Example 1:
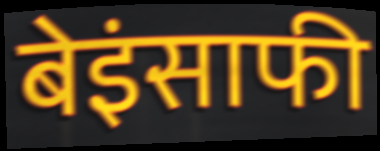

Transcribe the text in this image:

बेइंसाफी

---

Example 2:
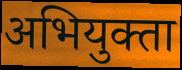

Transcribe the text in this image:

अभियुक्ता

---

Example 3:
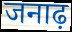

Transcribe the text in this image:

जनाढ़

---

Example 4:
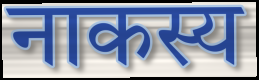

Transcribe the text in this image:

नाकस्य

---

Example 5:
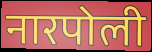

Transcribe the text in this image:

नारपोली